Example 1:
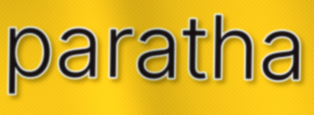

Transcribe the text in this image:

paratha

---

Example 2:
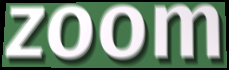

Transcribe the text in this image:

zoom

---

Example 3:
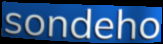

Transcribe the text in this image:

sondeho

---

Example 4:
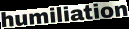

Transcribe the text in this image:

humiliation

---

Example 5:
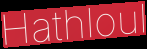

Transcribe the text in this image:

Hathloul